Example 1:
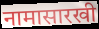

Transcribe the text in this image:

नामासारखी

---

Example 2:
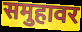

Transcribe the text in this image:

समुहावर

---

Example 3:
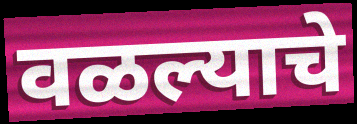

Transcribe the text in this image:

वळल्याचे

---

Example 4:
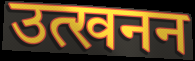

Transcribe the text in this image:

उत्‍खनन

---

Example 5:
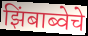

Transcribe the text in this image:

झिंबाब्वेचे